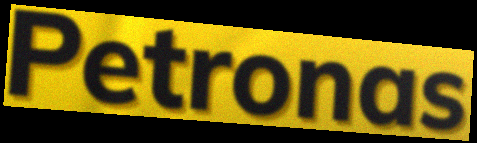
Petronas